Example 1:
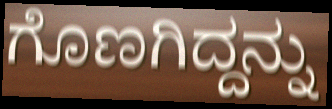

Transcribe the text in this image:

ಗೊಣಗಿದ್ದನ್ನು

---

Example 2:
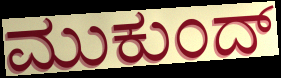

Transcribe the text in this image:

ಮುಕುಂದ್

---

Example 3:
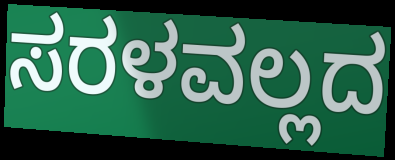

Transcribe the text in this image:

ಸರಳವಲ್ಲದ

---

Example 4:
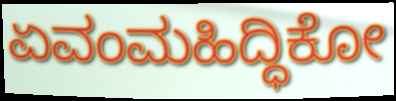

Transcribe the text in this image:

ಏವಂಮಹಿದ್ಧಿಕೋ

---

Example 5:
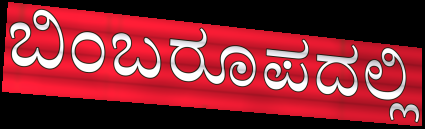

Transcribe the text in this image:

ಬಿಂಬರೂಪದಲ್ಲಿ